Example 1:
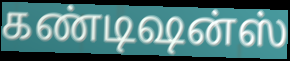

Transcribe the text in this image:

கண்டிஷன்ஸ்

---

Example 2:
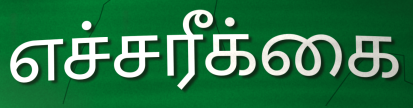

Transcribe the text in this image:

எச்சரீக்கை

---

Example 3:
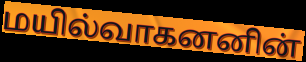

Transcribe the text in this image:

மயில்வாகனனின்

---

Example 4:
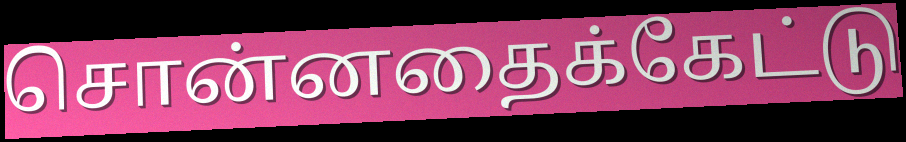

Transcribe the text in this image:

சொன்னதைக்கேட்டு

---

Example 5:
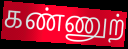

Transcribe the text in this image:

கண்ணுற்